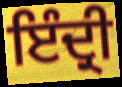
ਇੰਦ੍ਰੀ